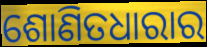
ଶୋଣିତଧାରାର